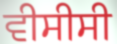
ਵੀਸੀਸੀ